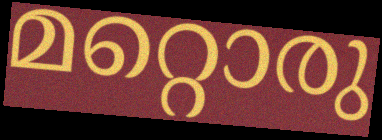
മറ്റൊരു